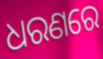
ଧରଣରେ